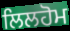
ਲਿਲਹੋਮ